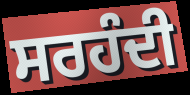
ਸਰਹੰਦੀ